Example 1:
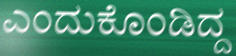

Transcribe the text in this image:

ಎಂದುಕೊಂಡಿದ್ದ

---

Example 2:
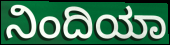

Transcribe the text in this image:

ನಿಂದಿಯಾ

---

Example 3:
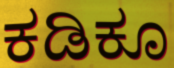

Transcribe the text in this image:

ಕಡಿಕೂ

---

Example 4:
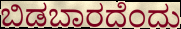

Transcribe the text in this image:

ಬಿಡಬಾರದೆಂದು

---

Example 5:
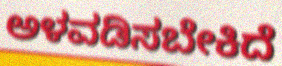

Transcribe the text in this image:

ಅಳವಡಿಸಬೇಕಿದೆ